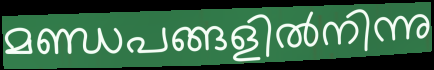
മണ്ഡപങ്ങളിൽനിന്നു